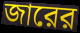
জারের